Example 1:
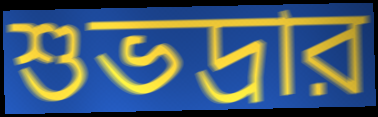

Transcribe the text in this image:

শুভদ্রার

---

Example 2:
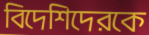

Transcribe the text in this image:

বিদেশিদেরকে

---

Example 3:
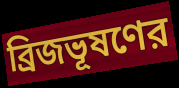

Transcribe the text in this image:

ব্রিজভূষণের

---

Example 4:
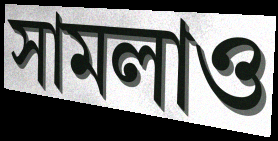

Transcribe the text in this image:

সামলাও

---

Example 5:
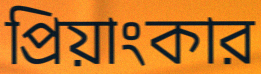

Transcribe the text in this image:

প্রিয়াংকার